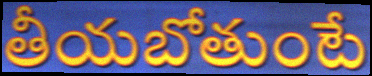
తీయబోతుంటే